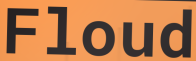
Floud